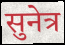
सुनेत्र